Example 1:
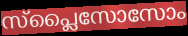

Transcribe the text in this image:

സ്പ്ലൈസോസോം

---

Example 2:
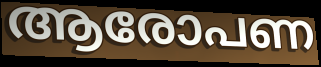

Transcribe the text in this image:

ആരോപണ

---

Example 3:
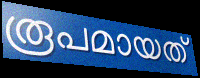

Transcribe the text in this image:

രൂപമായത്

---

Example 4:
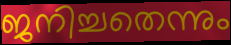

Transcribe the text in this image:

ജനിച്ചതെന്നും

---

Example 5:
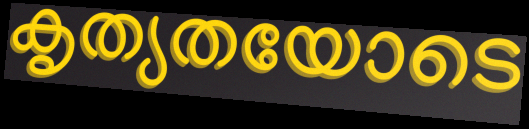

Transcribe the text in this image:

കൃത്യതയോടെ